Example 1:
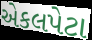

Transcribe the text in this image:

એકલપેટા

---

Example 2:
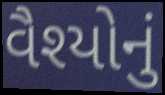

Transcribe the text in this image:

વૈશ્યોનું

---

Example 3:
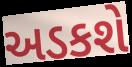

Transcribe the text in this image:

અડકશે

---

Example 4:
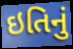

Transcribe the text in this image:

ઇતિનું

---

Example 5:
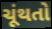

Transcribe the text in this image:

ચૂંથતો